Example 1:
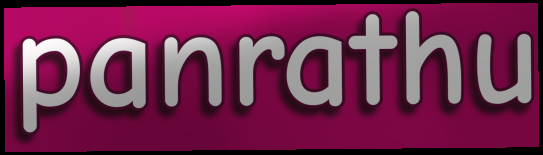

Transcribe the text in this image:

panrathu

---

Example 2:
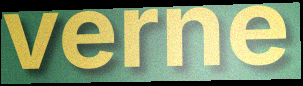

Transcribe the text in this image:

verne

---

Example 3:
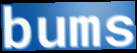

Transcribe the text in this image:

bums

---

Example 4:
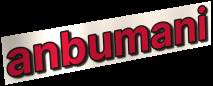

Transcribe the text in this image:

anbumani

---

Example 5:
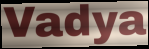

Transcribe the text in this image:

Vadya